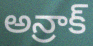
అన్రాక్